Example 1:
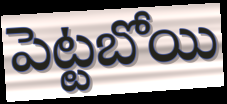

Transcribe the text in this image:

పెట్టబోయి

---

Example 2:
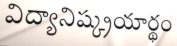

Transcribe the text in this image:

విద్యానిష్క్రయార్థం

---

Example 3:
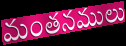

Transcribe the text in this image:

మంతనములు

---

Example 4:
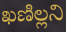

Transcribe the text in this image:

ఖణిల్లని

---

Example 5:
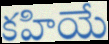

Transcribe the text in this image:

కహియే